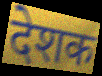
देशक